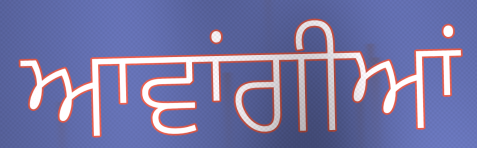
ਆਵਾਂਗੀਆਂ